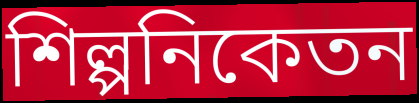
শিল্পনিকেতন